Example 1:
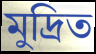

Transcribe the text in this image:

মুদ্রিত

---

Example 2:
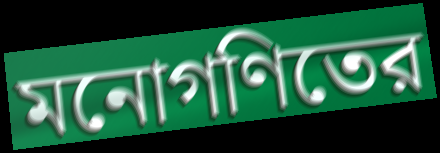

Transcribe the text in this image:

মনোগণিতের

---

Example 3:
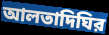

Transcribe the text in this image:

আলতাদিঘির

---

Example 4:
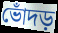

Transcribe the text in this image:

ভোঁদড়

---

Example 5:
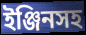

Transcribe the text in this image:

ইঞ্জিনসহ